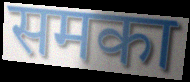
समका